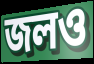
জলও